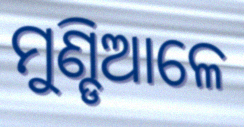
ମୁଣ୍ଡିଆଳେ